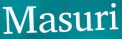
Masuri